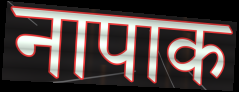
नापाक